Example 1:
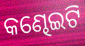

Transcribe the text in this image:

କଣ୍ଢେଇଟି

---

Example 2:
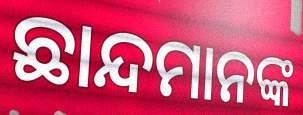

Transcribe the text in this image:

ଛାନ୍ଦମାନଙ୍କ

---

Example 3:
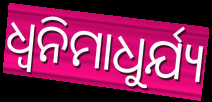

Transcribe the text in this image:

ଧ୍ୱନିମାଧୁର୍ଯ୍ୟ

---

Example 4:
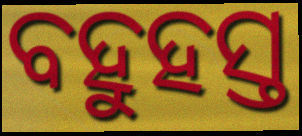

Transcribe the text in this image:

ବହୁହସ୍ତ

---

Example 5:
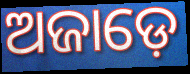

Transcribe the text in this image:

ଅଜାଡ଼େ